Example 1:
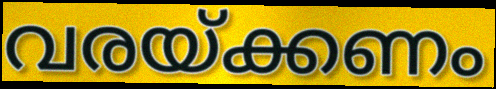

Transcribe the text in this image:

വരയ്ക്കണം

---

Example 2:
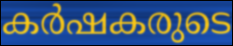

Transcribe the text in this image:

കർഷകരുടെ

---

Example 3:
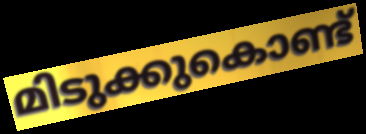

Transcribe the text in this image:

മിടുക്കുകൊണ്ട്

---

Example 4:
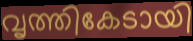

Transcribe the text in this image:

വൃത്തികേടായി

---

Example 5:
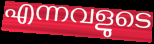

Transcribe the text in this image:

എന്നവളുടെ